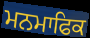
ਮਨਮਾਫਿਕ